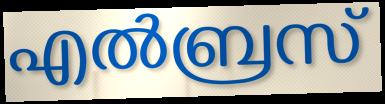
എൽബ്രസ്